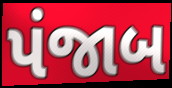
પંજાબ